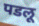
पडलू